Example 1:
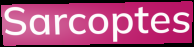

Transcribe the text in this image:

Sarcoptes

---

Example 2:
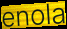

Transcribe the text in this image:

enola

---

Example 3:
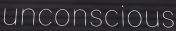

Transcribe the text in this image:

unconscious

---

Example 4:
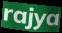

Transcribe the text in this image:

rajya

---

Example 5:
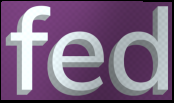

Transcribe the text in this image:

fed